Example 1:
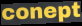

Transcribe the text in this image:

conept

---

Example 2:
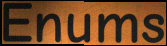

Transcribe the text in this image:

Enums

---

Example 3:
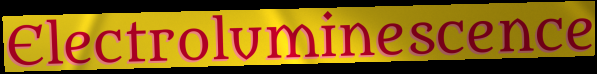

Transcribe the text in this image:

Electroluminescence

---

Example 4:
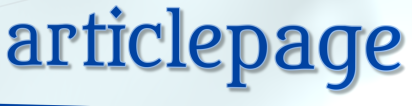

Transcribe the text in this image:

articlepage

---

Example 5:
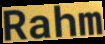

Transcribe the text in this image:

Rahm